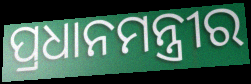
ପ୍ରଧାନମନ୍ତ୍ରୀର